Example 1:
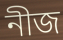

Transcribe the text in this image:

নীজ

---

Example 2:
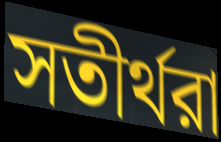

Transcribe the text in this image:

সতীর্থরা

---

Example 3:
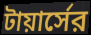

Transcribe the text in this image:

টায়ার্সের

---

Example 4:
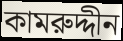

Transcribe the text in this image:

কামরুদ্দীন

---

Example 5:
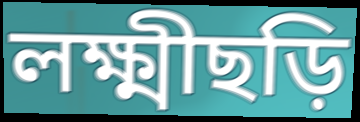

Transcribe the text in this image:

লক্ষ্মীছড়ি